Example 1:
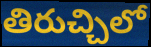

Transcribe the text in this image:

తిరుచ్చిలో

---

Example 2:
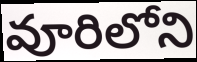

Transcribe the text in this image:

వూరిలోని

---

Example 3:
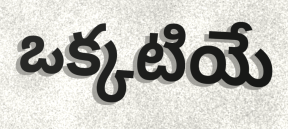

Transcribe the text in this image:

ఒక్కటియే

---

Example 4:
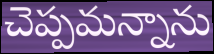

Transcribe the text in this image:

చెప్పమన్నాను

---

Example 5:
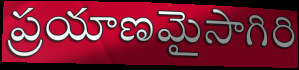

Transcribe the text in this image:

ప్రయాణమైసాగిరి